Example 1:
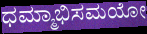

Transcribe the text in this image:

ಧಮ್ಮಾಭಿಸಮಯೋ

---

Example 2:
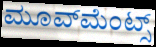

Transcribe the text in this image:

ಮೂವ್‍ಮೆಂಟ್ಸ್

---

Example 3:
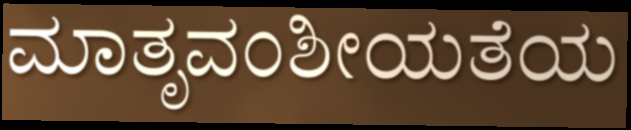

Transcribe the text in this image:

ಮಾತೃವಂಶೀಯತೆಯ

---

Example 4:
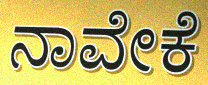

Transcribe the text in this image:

ನಾವೇಕೆ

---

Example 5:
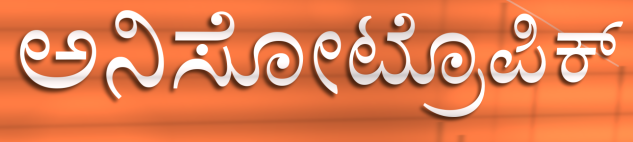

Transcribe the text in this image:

ಅನಿಸೋಟ್ರೊಪಿಕ್